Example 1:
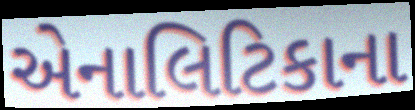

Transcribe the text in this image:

એનાલિટિકાના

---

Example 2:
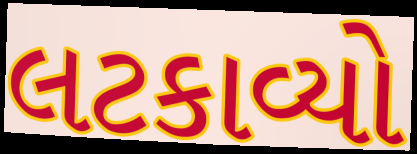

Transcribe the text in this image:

લટકાવ્યો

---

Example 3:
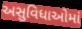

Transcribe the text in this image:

અસુવિધાઓમાં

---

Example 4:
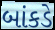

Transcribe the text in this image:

બાંકડે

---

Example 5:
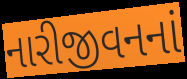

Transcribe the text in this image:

નારીજીવનનાં